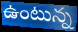
ఉంటున్న